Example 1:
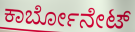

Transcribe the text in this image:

ಕಾರ್ಬೋನೇಟ್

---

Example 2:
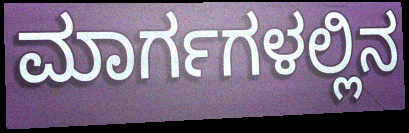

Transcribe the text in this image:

ಮಾರ್ಗಗಳಲ್ಲಿನ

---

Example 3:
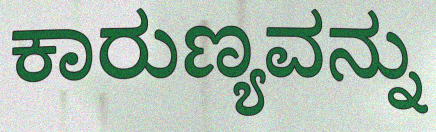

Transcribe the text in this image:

ಕಾರುಣ್ಯವನ್ನು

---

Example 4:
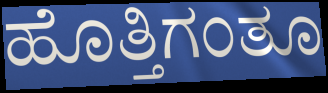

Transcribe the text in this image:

ಹೊತ್ತಿಗಂತೂ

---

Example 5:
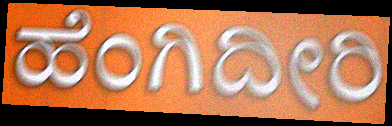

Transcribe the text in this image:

ಹೆಂಗಿದೀರಿ